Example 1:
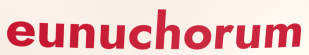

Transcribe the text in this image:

eunuchorum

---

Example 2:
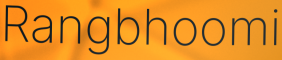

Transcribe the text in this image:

Rangbhoomi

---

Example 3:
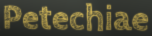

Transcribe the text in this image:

Petechiae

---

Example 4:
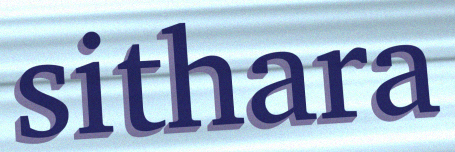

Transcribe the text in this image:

sithara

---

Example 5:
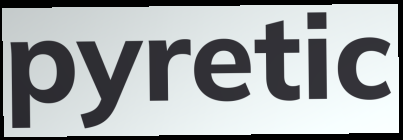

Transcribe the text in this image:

pyretic